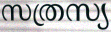
സത്രസ്യ